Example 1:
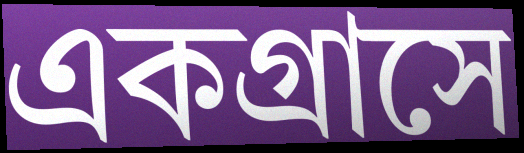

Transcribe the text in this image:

একগ্রাসে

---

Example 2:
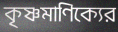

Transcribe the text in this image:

কৃষ্ণমাণিক্যের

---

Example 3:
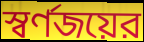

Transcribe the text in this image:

স্বর্ণজয়ের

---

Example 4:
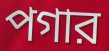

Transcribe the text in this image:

পগার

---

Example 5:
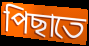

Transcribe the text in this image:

পিছাতে